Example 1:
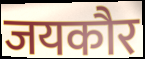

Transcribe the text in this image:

जयकौर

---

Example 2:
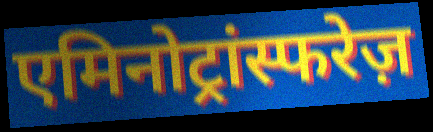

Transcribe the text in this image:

एमिनोट्रांस्फरेज़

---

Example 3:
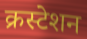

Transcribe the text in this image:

क्रस्टेशन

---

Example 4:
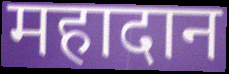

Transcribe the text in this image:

महादान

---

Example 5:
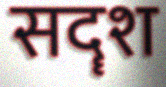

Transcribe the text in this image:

सदॄश